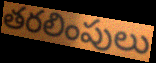
తరలింపులు